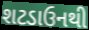
શટડાઉનથી